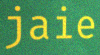
jaie